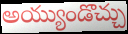
అయ్యుండొచ్చు